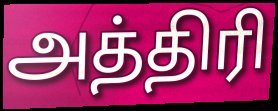
அத்திரி